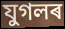
যুগলৰ